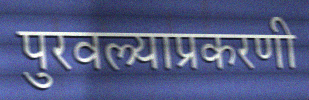
पुरवल्याप्रकरणी